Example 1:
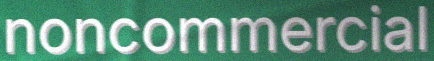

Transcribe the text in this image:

noncommercial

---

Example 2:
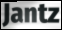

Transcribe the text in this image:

Jantz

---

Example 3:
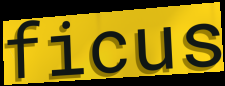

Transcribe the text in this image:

ficus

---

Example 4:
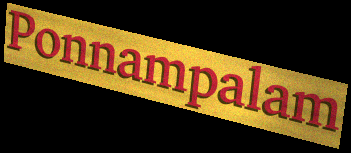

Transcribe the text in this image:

Ponnampalam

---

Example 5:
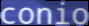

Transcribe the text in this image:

conio